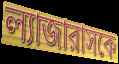
ল্যাজারাসকে